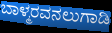
ಬಾಳ್ಮರವನಲುಗಾಡಿ